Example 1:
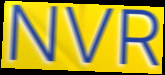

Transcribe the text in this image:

NVR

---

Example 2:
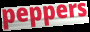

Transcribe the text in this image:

peppers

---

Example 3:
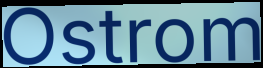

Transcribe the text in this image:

Ostrom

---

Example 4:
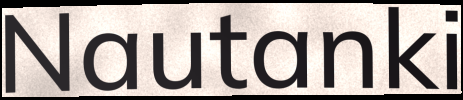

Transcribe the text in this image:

Nautanki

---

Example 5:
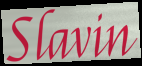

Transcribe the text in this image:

Slavin